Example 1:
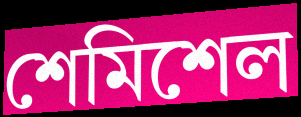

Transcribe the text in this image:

শেমিশেল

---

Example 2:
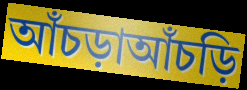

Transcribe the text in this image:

আঁচড়াআঁচড়ি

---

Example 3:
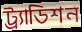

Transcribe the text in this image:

ট্র্যাডিশন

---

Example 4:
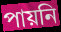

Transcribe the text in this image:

পায়নি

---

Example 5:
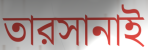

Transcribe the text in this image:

তারসানাই